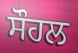
ਸੌਹਲ